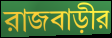
রাজবাড়ীর